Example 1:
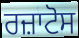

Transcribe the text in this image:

ਰਜ਼ਾਟੋਸ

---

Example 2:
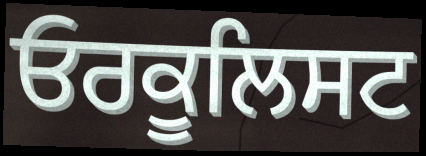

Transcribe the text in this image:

ਓਰਕੂਲਿਸਟ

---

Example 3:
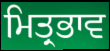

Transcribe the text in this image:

ਮਿਤ੍ਰਭਾਵ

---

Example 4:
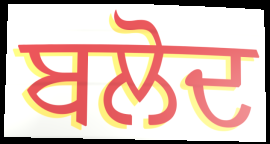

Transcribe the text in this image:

ਬਲੋਦ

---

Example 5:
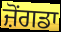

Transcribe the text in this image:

ਜ਼ੋਂਗਡਾ